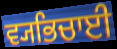
ਵ੍ਯਭਿਚਾਈ